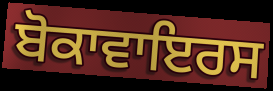
ਬੋਕਾਵਾਇਰਸ